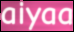
aiyaa